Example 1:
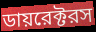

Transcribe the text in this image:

ডায়রেক্টরস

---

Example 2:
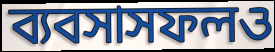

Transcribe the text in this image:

ব্যবসাসফলও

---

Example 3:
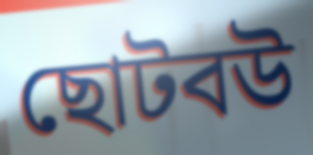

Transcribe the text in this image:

ছোটবউ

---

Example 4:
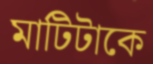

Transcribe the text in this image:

মাটিটাকে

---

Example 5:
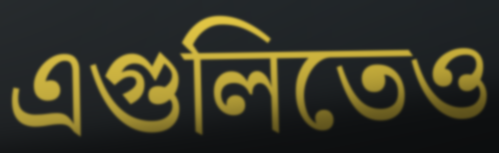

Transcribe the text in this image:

এগুলিতেও